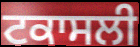
ਟਕਾਸਲੀ